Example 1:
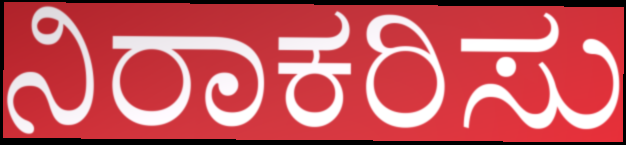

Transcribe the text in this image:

ನಿರಾಕರಿಸು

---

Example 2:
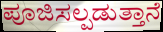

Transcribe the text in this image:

ಪೂಜಿಸಲ್ಪಡುತ್ತಾನೆ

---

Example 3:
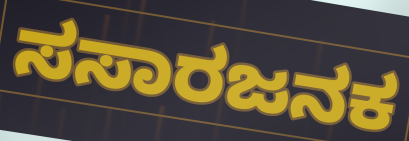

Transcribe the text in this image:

ಸಸಾರಜನಕ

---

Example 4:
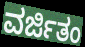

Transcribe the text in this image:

ವರ್ಜಿತಂ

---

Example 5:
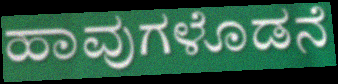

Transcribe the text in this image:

ಹಾವುಗಳೊಡನೆ